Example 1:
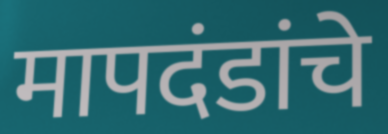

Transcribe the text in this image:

मापदंडांचे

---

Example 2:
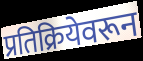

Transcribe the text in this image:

प्रतिक्रियेवरून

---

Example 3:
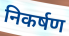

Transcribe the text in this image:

निकर्षण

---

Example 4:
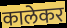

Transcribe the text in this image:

कालेकर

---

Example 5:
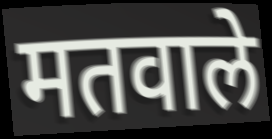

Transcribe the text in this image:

मतवाले